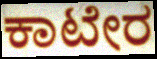
ಕಾಟೇರ